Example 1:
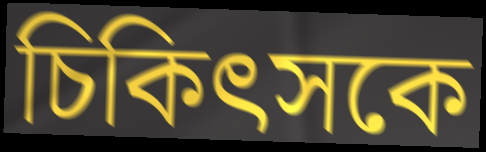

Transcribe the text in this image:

চিকিৎসকে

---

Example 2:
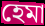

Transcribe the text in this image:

হেমা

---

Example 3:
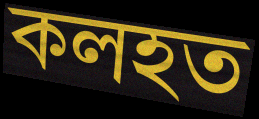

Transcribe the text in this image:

কলহত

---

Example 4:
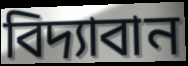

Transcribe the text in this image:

বিদ্যাবান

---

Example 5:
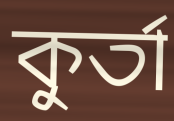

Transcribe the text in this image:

কুৰ্তা